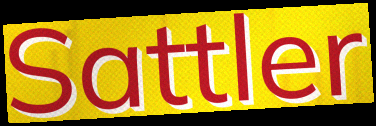
Sattler